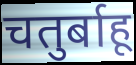
चतुर्बाहू